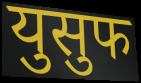
युसुफ